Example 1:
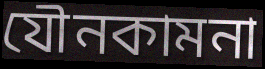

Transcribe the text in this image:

যৌনকামনা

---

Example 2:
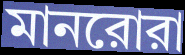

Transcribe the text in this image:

মানরোরা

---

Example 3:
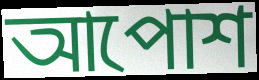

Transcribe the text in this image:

আপোশ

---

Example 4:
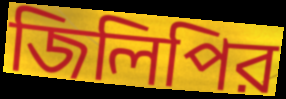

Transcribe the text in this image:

জিলিপির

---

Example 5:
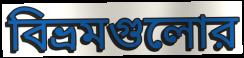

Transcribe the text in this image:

বিভ্রমগুলোর